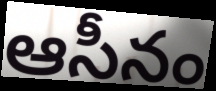
ఆసీనం